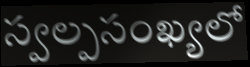
స్వల్పసంఖ్యలో